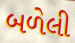
બળેલી